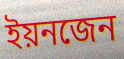
ইয়নজেন